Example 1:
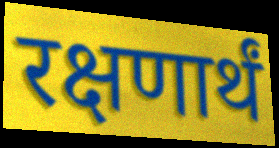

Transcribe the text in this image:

रक्षणार्थं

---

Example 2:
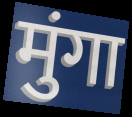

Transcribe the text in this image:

मुंगा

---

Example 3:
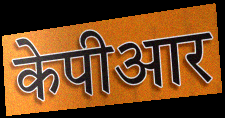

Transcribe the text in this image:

केपीआर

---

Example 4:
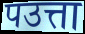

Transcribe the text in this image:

पउत्ता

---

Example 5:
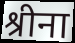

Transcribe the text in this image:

श्रीना